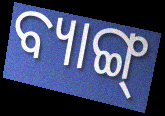
ବ୍ୟାଙ୍ଗ୍